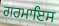
ਗਰਮਾਇਸ